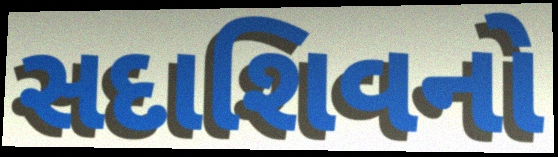
સદાશિવનો